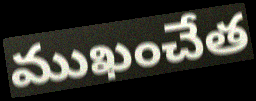
ముఖంచేత